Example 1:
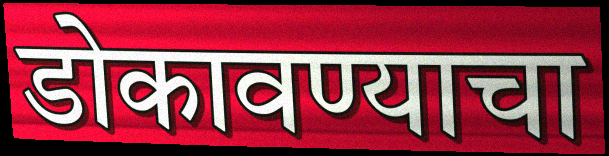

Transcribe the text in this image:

डोकावण्याचा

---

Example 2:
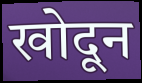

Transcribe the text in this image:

खोदून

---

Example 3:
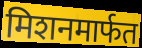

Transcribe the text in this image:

मिशनमार्फत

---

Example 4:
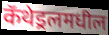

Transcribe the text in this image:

कॅथेड्रलमधील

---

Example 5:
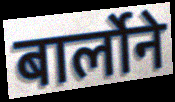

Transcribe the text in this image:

बार्लोने